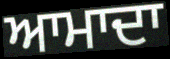
ਆਮਾਦਾ